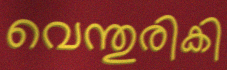
വെന്തുരികി